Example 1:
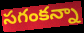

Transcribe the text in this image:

సగంకన్నా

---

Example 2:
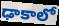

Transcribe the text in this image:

ఢాకాలో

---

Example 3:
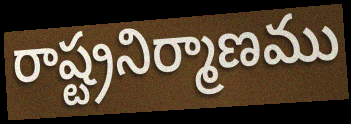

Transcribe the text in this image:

రాష్ట్రనిర్మాణము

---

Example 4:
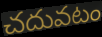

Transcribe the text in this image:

చదువటం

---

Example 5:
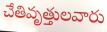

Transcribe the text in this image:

చేతివృత్తులవారు